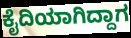
ಕೈದಿಯಾಗಿದ್ದಾಗ